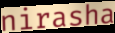
nirasha